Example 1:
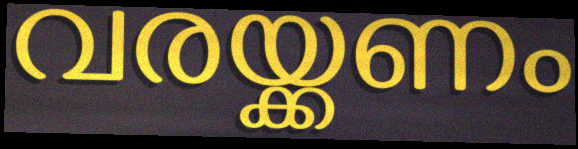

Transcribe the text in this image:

വരയ്ക്കണം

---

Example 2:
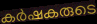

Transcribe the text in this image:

കർഷകരുടെ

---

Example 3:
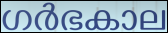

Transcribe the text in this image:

ഗർഭകാല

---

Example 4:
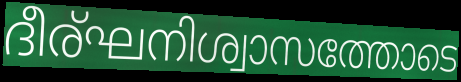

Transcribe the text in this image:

ദീര്ഘനിശ്വാസത്തോടെ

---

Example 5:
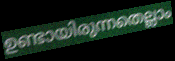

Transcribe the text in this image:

ഉണ്ടായിരുന്നതെല്ലാം